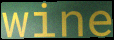
wine